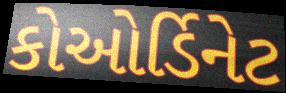
કોઓર્ડિનેટ